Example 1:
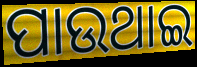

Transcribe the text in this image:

ପାଉଥାଇ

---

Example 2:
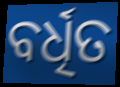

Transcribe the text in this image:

ବର୍ଧିତ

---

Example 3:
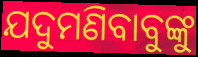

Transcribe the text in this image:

ଯଦୁମଣିବାବୁଙ୍କୁ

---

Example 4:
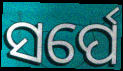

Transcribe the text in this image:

ସର୍ପେ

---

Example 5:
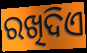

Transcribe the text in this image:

ରଖିଦିଏ